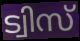
ട്വിസ്